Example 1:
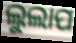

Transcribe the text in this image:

ଲୁଲାପ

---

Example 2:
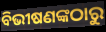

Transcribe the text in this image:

ବିଭୀଷଣଙ୍କଠାରୁ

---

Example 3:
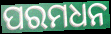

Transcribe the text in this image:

ପରମଧନ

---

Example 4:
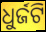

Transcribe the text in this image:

ଧୁର୍ଜଟି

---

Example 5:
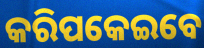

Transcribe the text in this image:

କରିପକେଇବେ